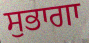
ਸੁਭਾਗਾ